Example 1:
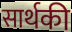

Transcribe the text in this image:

सार्थकी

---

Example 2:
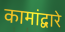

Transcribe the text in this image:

कामांद्वारे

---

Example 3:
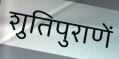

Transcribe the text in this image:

श्रुतिपुराणें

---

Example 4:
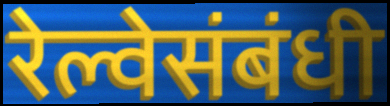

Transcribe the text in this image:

रेल्वेसंबंधी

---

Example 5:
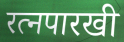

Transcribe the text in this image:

रत्नपारखी